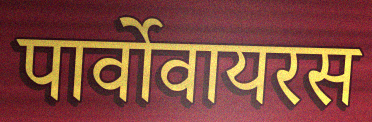
पार्वोवायरस